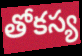
తోకస్య